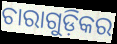
ଚାରାଗୁଡ଼ିକର